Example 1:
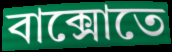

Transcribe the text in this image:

বাক্সোতে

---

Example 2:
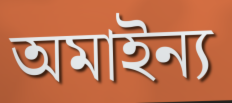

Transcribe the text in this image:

অমাইন্য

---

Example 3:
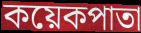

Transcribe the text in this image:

কয়েকপাতা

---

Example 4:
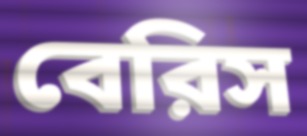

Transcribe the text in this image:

বেরিস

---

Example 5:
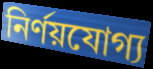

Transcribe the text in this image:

নির্ণয়যোগ্য